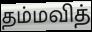
தம்மவித்